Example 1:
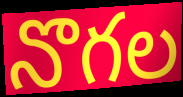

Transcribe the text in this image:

నొగల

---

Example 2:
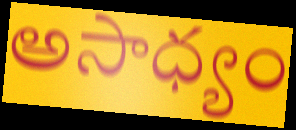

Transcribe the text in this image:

అసాధ్యం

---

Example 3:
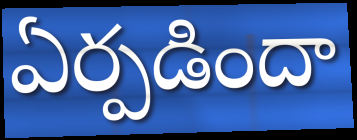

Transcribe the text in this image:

ఏర్పడిందా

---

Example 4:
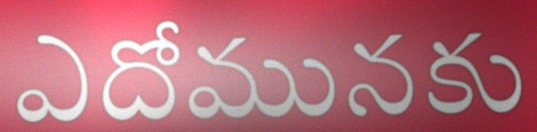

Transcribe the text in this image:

ఎదోమునకు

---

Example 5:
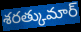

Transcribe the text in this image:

శరత్కుమార్